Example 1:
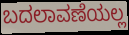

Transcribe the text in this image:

ಬದಲಾವಣೆಯಲ್ಲ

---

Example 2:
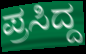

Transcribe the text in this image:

ಪ್ರಸಿದ್ದ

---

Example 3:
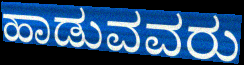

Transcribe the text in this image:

ಹಾಡುವವರು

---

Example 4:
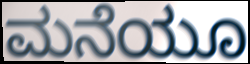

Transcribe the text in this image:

ಮನೆಯೂ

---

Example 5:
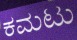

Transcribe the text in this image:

ಕಮಟು